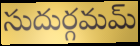
సుదుర్గమమ్